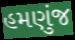
હમણુંજ